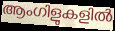
ആംഗിളുകളിൽ